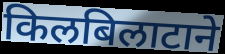
किलबिलाटाने